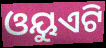
ଓୟୁଏଟି